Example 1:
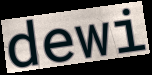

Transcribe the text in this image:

dewi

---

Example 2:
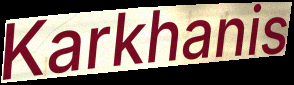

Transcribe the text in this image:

Karkhanis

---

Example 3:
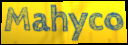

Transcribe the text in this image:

Mahyco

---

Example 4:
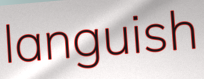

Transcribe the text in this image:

languish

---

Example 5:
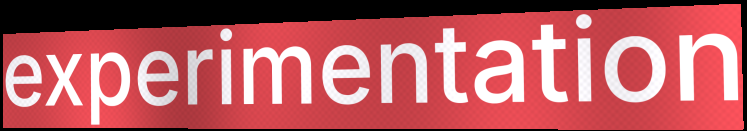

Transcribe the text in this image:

experimentation